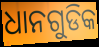
ଧାନଗୁଡିକ